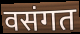
वसंगत